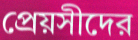
প্রেয়সীদের